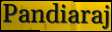
Pandiaraj